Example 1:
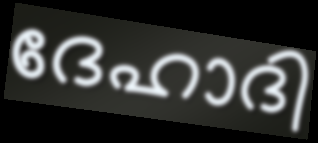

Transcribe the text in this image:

ദേഹാദി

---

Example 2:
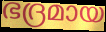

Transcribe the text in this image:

ഭദ്രമായ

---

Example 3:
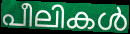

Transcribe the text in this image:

പീലികൾ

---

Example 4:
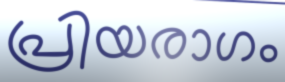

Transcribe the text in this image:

പ്രിയരാഗം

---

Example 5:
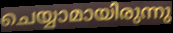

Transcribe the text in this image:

ചെയ്യാമായിരുന്നു